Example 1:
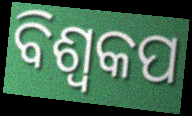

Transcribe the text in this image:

ବିଶ୍ବକପ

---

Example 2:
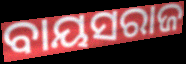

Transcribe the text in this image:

ବାୟସରାଜ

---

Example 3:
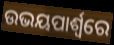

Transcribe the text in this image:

ଉଭୟପାର୍ଶ୍ବରେ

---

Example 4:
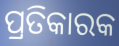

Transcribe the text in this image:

ପ୍ରତିକାରକ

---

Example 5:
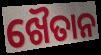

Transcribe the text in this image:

ଖୈତାନ